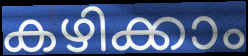
കഴിക്കാം